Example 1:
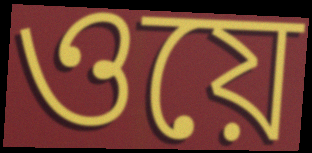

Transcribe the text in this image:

ওয়ে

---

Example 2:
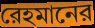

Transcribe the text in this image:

রেহমানের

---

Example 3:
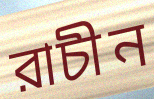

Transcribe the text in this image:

রাচীন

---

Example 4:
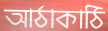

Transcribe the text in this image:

আঠাকাঠি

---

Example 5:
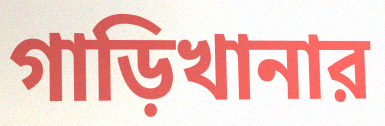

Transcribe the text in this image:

গাড়িখানার